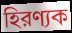
হিরণ্যক